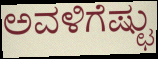
ಅವಳಿಗೆಷ್ಟು